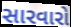
સારવારો